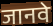
जानवे